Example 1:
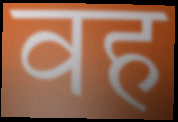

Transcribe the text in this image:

वह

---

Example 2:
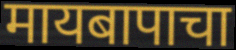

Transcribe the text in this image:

मायबापाचा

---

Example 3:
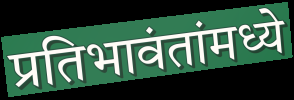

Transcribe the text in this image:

प्रतिभावंतांमध्ये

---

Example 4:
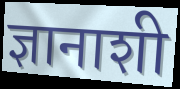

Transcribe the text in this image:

ज्ञानाशी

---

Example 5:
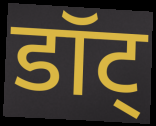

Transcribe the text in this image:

डॉट्